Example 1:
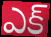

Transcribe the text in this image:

ఎక్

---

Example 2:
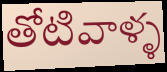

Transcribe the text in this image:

తోటివాళ్ళ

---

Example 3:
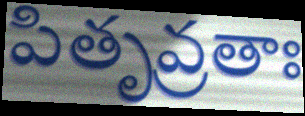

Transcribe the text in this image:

పితృవ్రతాః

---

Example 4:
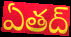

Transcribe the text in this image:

ఏతద్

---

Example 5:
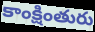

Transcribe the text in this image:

కాంక్షింతురు